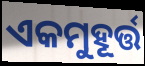
ଏକମୁହୂର୍ତ୍ତ